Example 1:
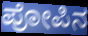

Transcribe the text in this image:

ಪೋಪಿನ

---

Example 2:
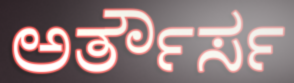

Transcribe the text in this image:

ಅರ್ತೌರ್ಸ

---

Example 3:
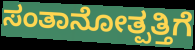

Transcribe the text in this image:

ಸಂತಾನೋತ್ಪತ್ತಿಗೆ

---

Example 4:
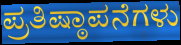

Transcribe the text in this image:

ಪ್ರತಿಷ್ಠಾಪನೆಗಳು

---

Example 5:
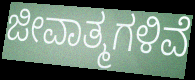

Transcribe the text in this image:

ಜೀವಾತ್ಮಗಳಿವೆ